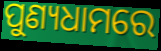
ପୁଣ୍ୟଧାମରେ